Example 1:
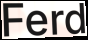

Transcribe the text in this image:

Ferd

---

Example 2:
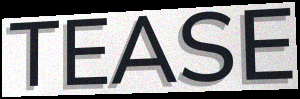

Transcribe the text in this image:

TEASE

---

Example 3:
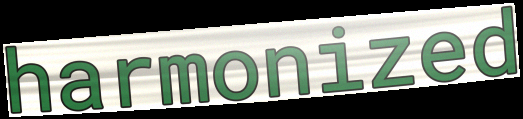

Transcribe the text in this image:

harmonized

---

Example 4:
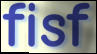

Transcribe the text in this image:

fisf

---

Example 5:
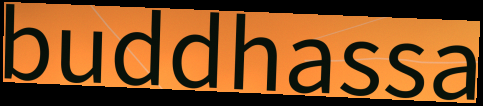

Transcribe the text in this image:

buddhassa